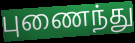
புணைந்து